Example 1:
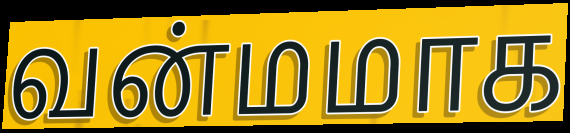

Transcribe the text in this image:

வன்மமாக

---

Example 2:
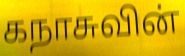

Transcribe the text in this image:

கநாசுவின்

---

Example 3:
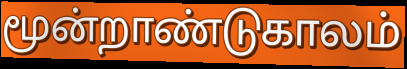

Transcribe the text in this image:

மூன்றாண்டுகாலம்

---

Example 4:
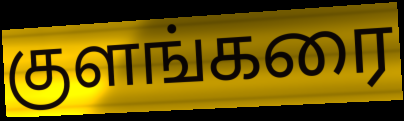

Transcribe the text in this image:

குளங்கரை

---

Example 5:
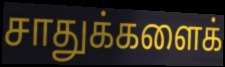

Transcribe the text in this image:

சாதுக்களைக்